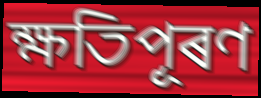
ক্ষতিপূৰণ